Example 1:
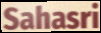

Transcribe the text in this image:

Sahasri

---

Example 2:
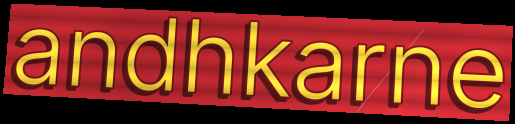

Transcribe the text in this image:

andhkarne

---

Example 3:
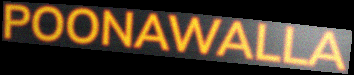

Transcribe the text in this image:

POONAWALLA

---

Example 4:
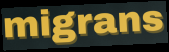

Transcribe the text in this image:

migrans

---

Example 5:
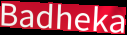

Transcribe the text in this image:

Badheka